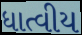
ધાત્વીય